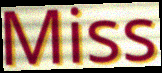
Miss